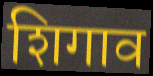
शिगाव